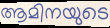
ആമിനയുടെ